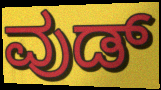
ವುಡ್